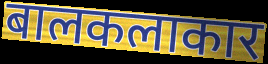
बालकलाकार